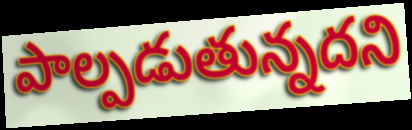
పాల్పడుతున్నదని